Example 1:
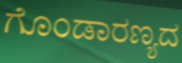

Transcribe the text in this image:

ಗೊಂಡಾರಣ್ಯದ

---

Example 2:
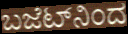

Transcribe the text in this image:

ಬಜೆಟ್‌ನಿಂದ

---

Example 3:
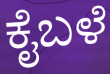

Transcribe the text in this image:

ಕೈಬಳೆ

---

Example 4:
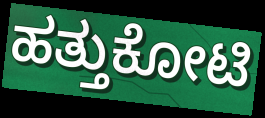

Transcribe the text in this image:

ಹತ್ತುಕೋಟಿ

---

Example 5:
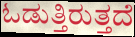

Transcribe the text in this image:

ಓಡುತ್ತಿರುತ್ತದೆ